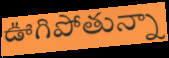
ఊగిపోతున్నా